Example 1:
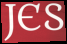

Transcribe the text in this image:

JES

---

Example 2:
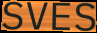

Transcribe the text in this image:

SVES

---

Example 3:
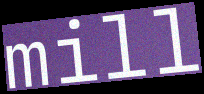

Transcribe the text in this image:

mill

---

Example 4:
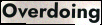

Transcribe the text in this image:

Overdoing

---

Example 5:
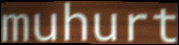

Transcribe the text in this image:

muhurt